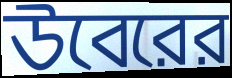
উবেরের